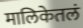
मालिकेतलं